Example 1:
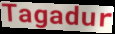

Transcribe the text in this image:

Tagadur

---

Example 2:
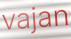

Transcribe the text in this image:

vajan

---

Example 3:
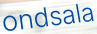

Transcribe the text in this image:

ondsala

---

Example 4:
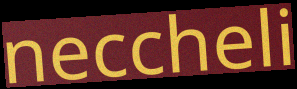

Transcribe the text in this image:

neccheli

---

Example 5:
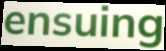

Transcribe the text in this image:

ensuing